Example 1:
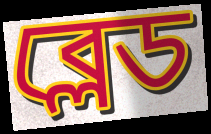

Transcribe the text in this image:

ব্লেড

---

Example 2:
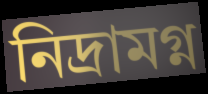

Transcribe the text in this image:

নিদ্ৰামগ্ন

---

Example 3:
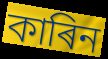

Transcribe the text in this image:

কাৰিন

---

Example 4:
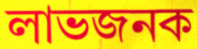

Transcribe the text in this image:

লাভজনক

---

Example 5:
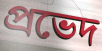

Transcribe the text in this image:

প্ৰভেদ